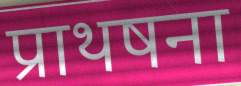
प्राथषना